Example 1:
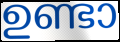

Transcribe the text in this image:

ഉണ്ടാ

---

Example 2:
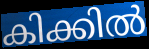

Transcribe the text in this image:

കിക്കിൽ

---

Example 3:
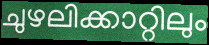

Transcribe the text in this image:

ചുഴലിക്കാറ്റിലും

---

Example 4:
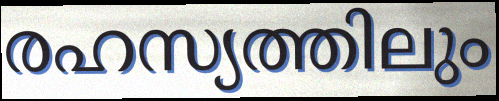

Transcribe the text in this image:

രഹസ്യത്തിലും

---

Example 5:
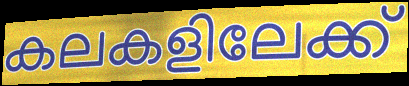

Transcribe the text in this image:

കലകളിലേക്ക്